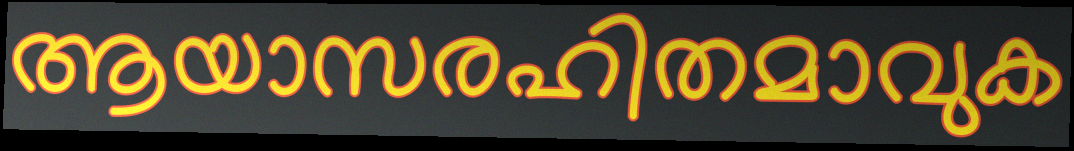
ആയാസരഹിതമാവുക